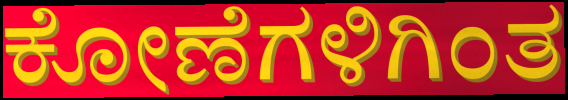
ಕೋಣೆಗಳಿಗಿಂತ